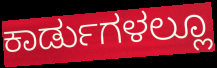
ಕಾರ್ಡುಗಳಲ್ಲೂ